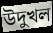
উদুখল